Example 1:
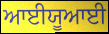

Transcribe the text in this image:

ਆਈਯੂਆਈ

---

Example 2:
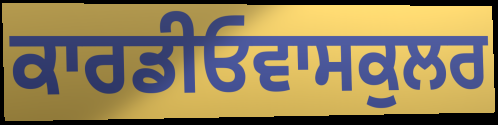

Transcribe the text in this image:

ਕਾਰਡੀਓਵਾਸਕੁਲਰ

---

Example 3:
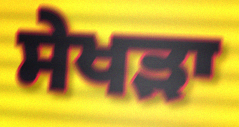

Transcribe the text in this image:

ਸੇਖੜਾ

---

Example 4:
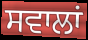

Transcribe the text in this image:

ਸਵਾਲਾਂ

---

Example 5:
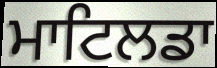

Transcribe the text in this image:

ਮਾਟਿਲਡਾ